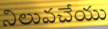
నిలువచేయు